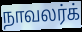
நாவலர்க்